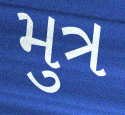
મુત્ર